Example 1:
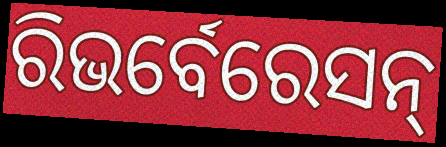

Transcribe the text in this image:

ରିଭର୍ବେରେସନ୍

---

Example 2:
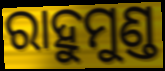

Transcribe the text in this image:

ରାହୁମୁଣ୍ଡ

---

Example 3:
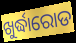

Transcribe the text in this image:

ଖୁର୍ଦ୍ଧାରୋଡ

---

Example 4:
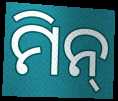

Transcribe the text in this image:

ମିନ୍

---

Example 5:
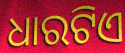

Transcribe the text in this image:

ଧାରଟିଏ